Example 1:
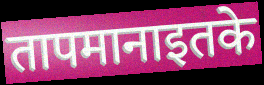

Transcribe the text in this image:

तापमानाइतके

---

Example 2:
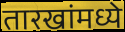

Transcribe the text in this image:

तारखांमध्ये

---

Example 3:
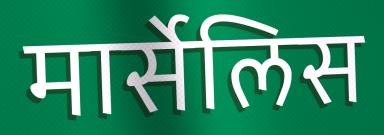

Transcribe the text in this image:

मार्सेलिस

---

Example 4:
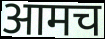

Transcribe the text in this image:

आमच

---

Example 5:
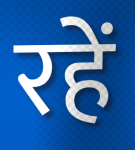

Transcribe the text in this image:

रहें